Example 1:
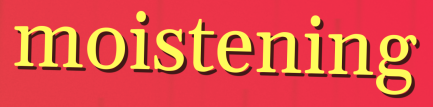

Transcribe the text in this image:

moistening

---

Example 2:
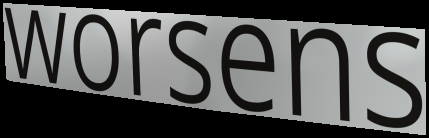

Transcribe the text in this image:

worsens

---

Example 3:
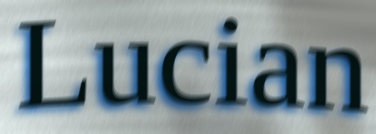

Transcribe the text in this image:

Lucian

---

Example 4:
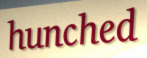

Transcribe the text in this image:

hunched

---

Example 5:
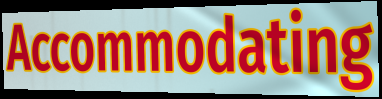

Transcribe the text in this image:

Accommodating